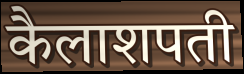
कैलाशपती